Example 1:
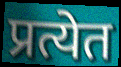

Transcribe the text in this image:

प्रत्येत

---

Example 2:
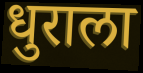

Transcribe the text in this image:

धुराला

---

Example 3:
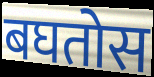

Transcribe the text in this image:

बघतोस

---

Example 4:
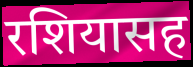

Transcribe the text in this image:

रशियासह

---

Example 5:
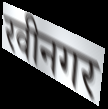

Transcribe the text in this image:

रवीनगर